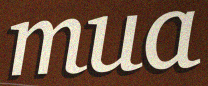
mua